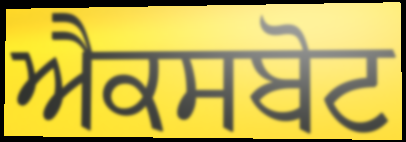
ਐਕਸਬੋਟ